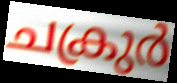
ചക്രുർ